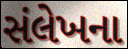
સંલેખના